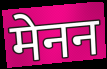
मेनन